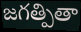
జగత్పితా